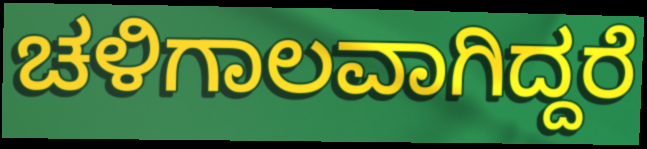
ಚಳಿಗಾಲವಾಗಿದ್ದರೆ